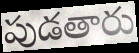
పుడతారు